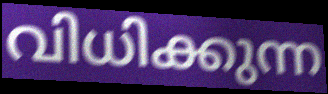
വിധിക്കുന്ന